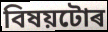
বিষয়টোৰ